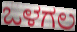
ಒಳಗಲ